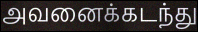
அவனைக்கடந்து